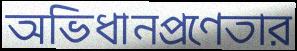
অভিধানপ্রণেতার